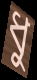
ধু